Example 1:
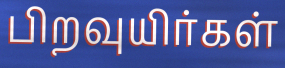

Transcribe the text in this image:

பிறவுயிர்கள்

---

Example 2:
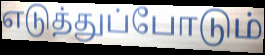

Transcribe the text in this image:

எடுத்துப்போடும்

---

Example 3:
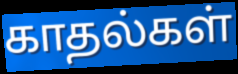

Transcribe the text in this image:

காதல்கள்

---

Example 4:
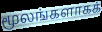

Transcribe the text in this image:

மூலங்களாகக்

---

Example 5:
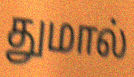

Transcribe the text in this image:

துமால்